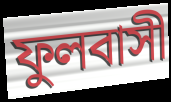
ফুলবাসী